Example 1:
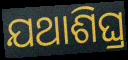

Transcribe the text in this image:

ଯଥାଶିଘ୍ର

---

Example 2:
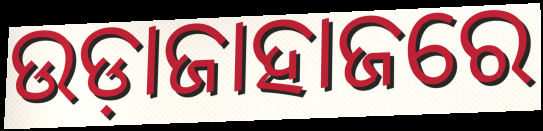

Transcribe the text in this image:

ଉଡ଼ାଜାହାଜରେ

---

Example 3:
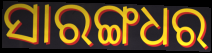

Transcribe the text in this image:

ସାରଙ୍ଗଧର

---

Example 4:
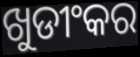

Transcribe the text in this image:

ଖୁଡୀଂକର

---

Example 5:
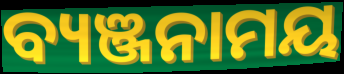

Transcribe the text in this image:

ବ୍ୟଞ୍ଜନାମୟ